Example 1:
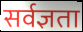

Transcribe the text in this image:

सर्वज्ञता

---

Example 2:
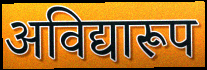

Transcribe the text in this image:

अविद्यारूप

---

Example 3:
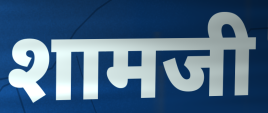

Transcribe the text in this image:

शामजी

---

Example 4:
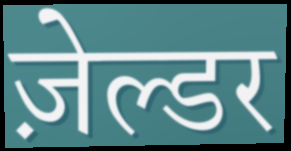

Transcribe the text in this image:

ज़ेल्डर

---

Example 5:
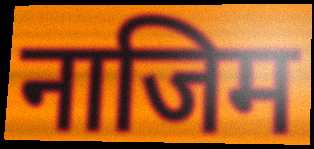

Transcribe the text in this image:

नाजिम